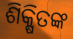
ଶିକ୍ଷିତଙ୍କ